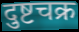
दुष्टचक्र